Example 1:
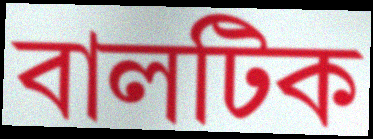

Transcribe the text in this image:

বালটিক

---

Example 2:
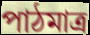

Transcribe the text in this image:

পাঠমাত্র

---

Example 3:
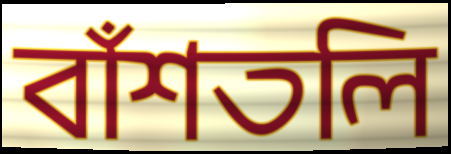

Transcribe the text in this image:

বাঁশতলি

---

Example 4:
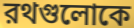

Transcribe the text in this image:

রথগুলোকে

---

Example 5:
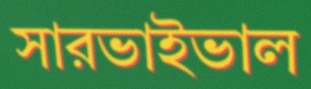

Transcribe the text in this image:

সারভাইভাল